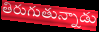
తిరుగుతున్నాడు